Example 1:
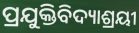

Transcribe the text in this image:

ପ୍ରଯୁକ୍ତିବିଦ୍ୟାଶ୍ରୟୀ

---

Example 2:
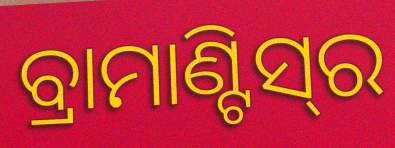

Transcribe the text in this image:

ବ୍ରାମାଣ୍ଟିସ୍‌ର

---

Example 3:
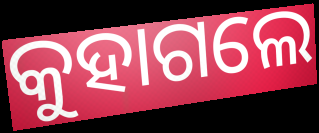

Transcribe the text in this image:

କୁହାଗଲେ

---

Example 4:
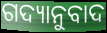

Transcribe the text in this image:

ଗଦ୍ୟାନୁବାଦ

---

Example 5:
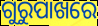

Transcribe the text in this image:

ଗୁରୁପାଖରେ